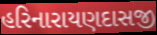
હરિનારાયણદાસજી